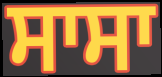
ਸਾਸਾ